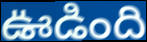
ఊడింది